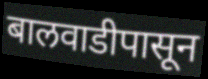
बालवाडीपासून